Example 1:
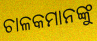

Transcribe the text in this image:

ଚାଳକମାନଙ୍କୁ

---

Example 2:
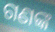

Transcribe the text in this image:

ଗଣଙ୍କ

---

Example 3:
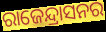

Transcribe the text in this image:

ରାଜେନ୍ଦ୍ରାସନର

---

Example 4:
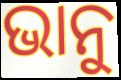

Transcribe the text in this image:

ଭାନୁ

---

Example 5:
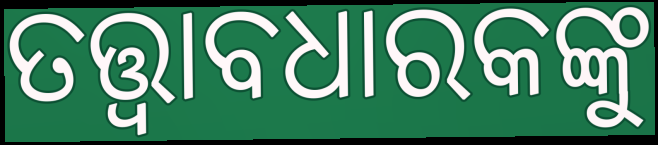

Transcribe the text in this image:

ତତ୍ତ୍ଵାବଧାରକଙ୍କୁ